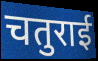
चतुराई